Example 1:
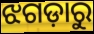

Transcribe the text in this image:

ଝଗଡ଼ାରୁ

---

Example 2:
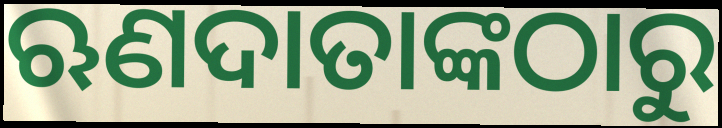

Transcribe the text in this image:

ଋଣଦାତାଙ୍କଠାରୁ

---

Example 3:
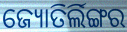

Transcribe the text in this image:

ଜ୍ୟୋତିର୍ଲିଙ୍ଗର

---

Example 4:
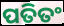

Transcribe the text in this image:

ପତିତଂ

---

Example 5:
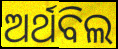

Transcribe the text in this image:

ଅର୍ଥବିଲ